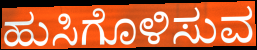
ಹುಸಿಗೊಳಿಸುವ